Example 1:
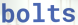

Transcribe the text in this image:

bolts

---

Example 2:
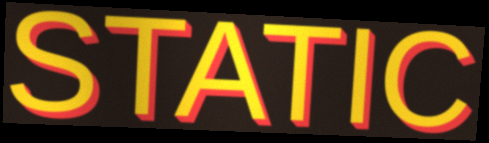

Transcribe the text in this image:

STATIC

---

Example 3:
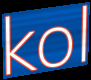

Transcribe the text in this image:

kol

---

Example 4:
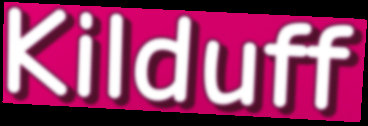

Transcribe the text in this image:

Kilduff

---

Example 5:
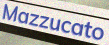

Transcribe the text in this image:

Mazzucato